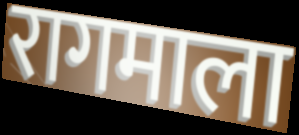
रागमाला